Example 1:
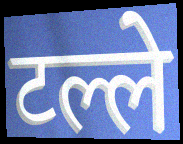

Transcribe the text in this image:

टल्ले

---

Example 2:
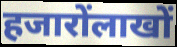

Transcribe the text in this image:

हजारोंलाखों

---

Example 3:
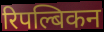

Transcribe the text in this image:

रिपल्बिकन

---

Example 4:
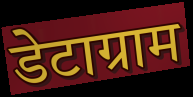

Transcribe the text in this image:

डेटाग्राम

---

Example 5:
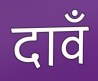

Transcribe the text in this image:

दावँ